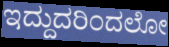
ಇದ್ದುದರಿಂದಲೋ